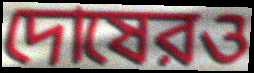
দোষেরও